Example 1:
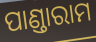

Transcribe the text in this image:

ପାଣ୍ଡାରାମ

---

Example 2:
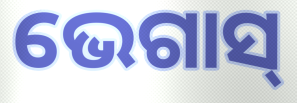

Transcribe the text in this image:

ଭେଗାସ୍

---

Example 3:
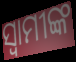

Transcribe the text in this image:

ସ୍ୱାମୀଙ୍କ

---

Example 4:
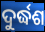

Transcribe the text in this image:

ଦୁର୍ଦ୍ଧଶ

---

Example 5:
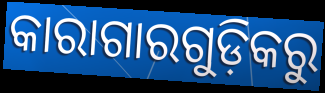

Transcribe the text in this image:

କାରାଗାରଗୁଡ଼ିକରୁ